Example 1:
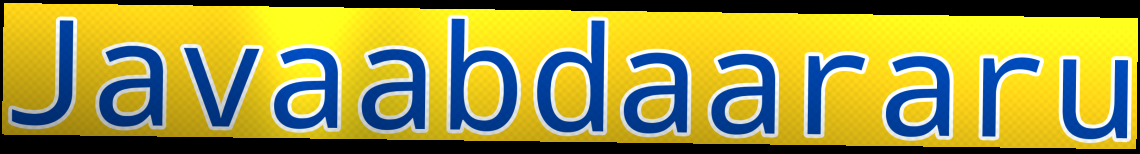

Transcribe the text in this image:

Javaabdaararu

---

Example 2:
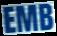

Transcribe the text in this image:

EMB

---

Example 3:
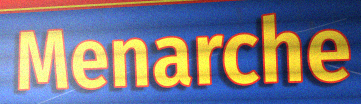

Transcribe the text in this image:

Menarche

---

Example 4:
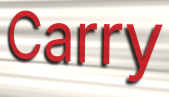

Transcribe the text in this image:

Carry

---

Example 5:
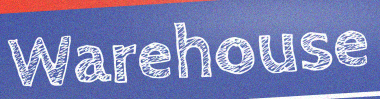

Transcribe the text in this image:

Warehouse